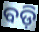
ବଡ଼ି